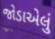
જોડાએલું